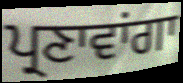
ਪ੍ਰਣਾਵਾਂਗਾ